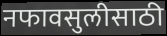
नफावसुलीसाठी